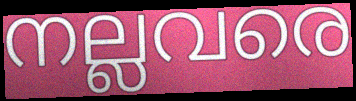
നല്ലവരെ